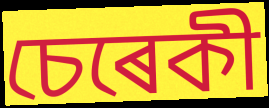
চেৰেকী